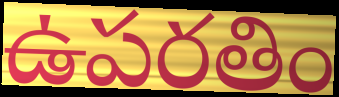
ఉపరతిం